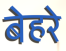
बेहरे